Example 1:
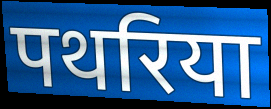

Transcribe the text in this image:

पथरिया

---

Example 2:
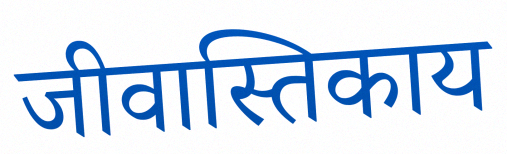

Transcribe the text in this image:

जीवास्तिकाय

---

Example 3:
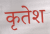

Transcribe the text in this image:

कृतेश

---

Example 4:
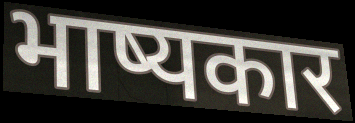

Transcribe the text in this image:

भाष्यकार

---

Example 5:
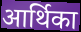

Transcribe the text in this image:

आर्थिका